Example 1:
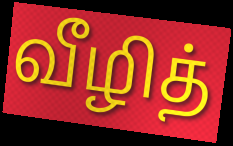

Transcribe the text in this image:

வீழித்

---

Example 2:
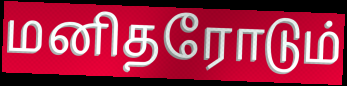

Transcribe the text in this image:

மனிதரோடும்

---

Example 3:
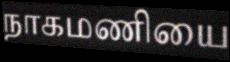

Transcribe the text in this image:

நாகமணியை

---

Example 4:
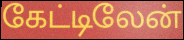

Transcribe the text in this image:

கேட்டிலேன்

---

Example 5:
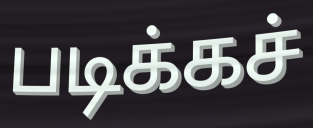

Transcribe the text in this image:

படிக்கச்